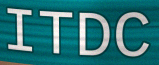
ITDC